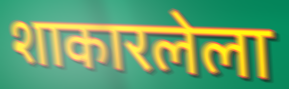
शाकारलेला